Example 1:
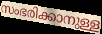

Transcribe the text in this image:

സംഭരിക്കാനുള്ള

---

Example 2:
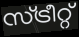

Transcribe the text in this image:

സ്ട്രീറ്റ്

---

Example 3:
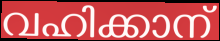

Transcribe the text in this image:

വഹിക്കാന്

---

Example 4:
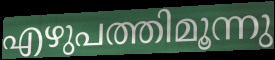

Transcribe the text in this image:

എഴുപത്തിമൂന്നു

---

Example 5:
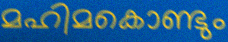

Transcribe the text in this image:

മഹിമകൊണ്ടും